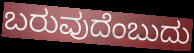
ಬರುವುದೆಂಬುದು